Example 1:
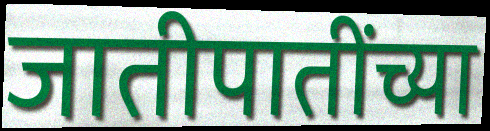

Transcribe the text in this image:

जातीपातींच्या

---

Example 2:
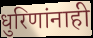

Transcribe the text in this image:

धुरिणांनाही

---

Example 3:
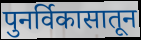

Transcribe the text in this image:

पुनर्विकासातून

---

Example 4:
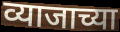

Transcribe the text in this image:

व्याजाच्या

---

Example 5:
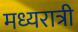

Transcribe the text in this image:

मध्यरात्री